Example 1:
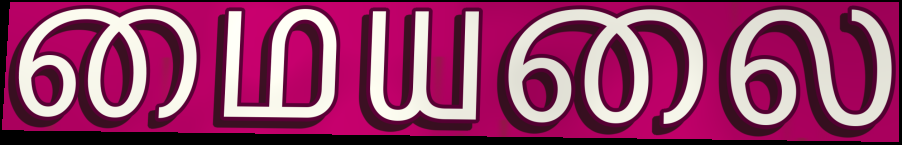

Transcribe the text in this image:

மையலை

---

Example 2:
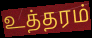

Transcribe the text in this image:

உத்தரம்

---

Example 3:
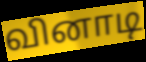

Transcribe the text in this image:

வினாடி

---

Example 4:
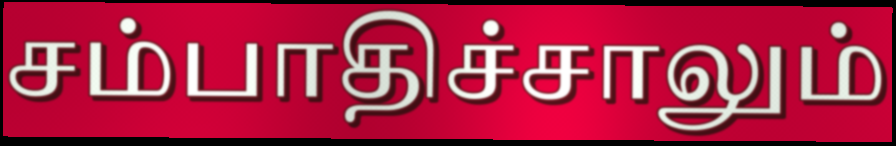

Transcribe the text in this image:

சம்பாதிச்சாலும்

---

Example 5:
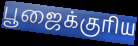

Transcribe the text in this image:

பூஜைக்குரிய